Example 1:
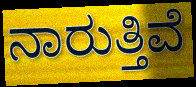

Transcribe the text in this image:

ನಾರುತ್ತಿವೆ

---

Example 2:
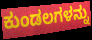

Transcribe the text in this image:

ಕುಂಡಲಗಳನ್ನು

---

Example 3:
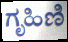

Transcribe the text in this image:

ಗೃಹಿಣಿ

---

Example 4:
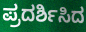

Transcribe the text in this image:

ಪ್ರದರ್ಶಿಸಿದ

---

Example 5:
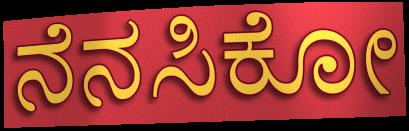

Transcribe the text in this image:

ನೆನಸಿಕೋ